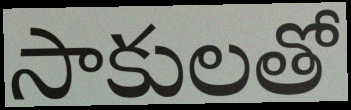
సాకులతో